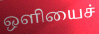
ஒளியைச்